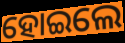
ହୋଇଲେ